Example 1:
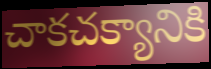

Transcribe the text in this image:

చాకచక్యానికి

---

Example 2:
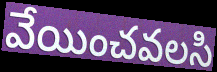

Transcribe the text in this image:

వేయించవలసి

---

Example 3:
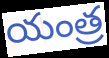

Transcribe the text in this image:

యంత్ర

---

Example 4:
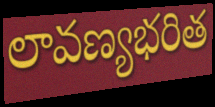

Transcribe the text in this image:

లావణ్యభరిత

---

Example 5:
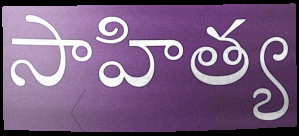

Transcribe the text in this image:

సాహిత్య